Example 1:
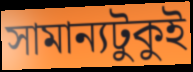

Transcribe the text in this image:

সামান্যটুকুই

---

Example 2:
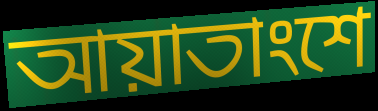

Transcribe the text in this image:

আয়াতাংশে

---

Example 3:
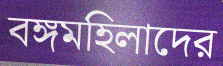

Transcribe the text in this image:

বঙ্গমহিলাদের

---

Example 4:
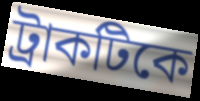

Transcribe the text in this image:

ট্রাকটিকে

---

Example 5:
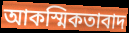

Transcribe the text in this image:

আকস্মিকতাবাদ